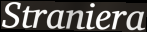
Straniera